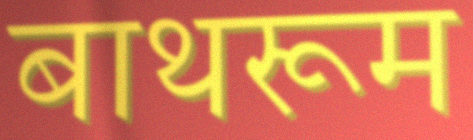
बाथरूम